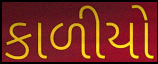
કાળીયો